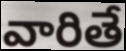
వారితే